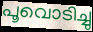
പൂവൊടിച്ചു